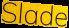
Slade